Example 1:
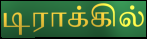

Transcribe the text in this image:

டிராக்கில்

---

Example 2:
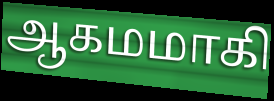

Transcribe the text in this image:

ஆகமமாகி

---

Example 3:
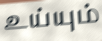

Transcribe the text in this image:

உய்யும்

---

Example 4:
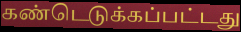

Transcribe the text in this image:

கண்டெடுக்கப்பட்டது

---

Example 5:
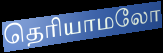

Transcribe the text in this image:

தெரியாமலோ